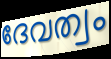
ദേവത്വം